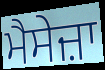
ਮੈਸੇਜ਼ਾ